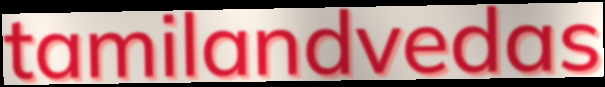
tamilandvedas